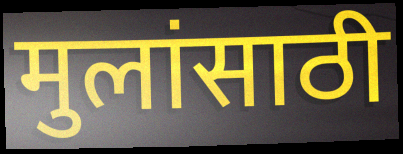
मुलांसाठी